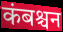
कंबश्चन